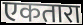
एकतारा